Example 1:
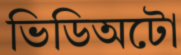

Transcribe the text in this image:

ভিডিঅটো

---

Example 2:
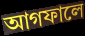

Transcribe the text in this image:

আগফালে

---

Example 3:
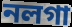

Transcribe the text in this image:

নলগা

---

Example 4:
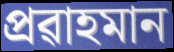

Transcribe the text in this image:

প্ৰৱাহমান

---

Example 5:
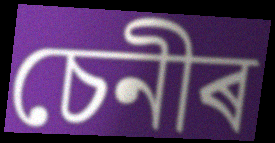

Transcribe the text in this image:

চেনীৰ